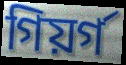
গিয়ৰ্গ